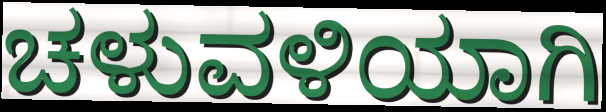
ಚಳುವಳಿಯಾಗಿ